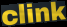
clink